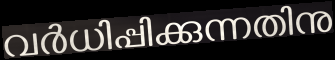
വർധിപ്പിക്കുന്നതിനു